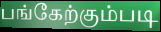
பங்கேற்கும்படி